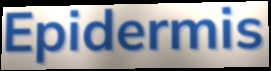
Epidermis